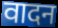
वादन